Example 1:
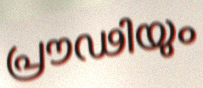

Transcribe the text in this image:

പ്രൗഢിയും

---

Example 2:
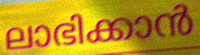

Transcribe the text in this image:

ലാഭിക്കാൻ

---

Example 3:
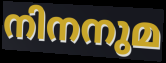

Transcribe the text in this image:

നിനനുമ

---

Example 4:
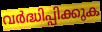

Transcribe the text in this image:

വർദ്ധിപ്പിക്കുക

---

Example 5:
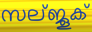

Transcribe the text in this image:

സല്ജൂക്